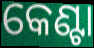
କେଣ୍ଟା